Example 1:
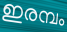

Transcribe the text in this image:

ഇരമ്പം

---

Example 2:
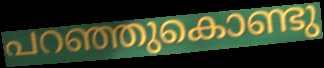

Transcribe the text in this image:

പറഞ്ഞുകൊണ്ടു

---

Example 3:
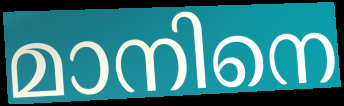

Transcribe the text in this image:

മാനിനെ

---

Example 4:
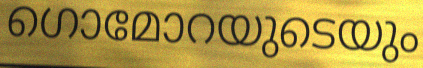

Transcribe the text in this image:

ഗൊമോറയുടെയും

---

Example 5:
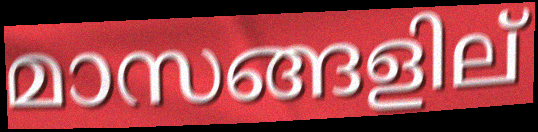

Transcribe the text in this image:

മാസങ്ങളില്